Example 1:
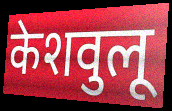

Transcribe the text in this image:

केशवुलू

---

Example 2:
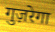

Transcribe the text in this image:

गुज़रेगा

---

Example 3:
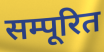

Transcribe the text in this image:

सम्पूरित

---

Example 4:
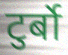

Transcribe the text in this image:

टुर्बो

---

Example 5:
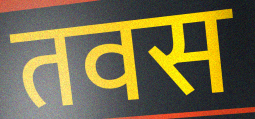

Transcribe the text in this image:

तवस